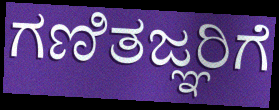
ಗಣಿತಜ್ಞರಿಗೆ